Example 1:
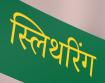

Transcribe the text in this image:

स्लिथरिंग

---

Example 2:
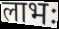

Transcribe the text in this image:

लाभः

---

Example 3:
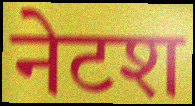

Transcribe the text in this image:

नेटश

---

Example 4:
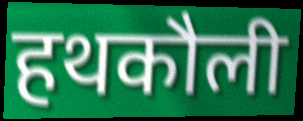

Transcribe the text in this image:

हथकौली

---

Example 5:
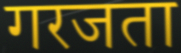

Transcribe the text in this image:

गरजता